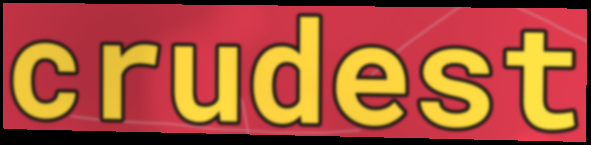
crudest